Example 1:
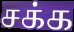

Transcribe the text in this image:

சக்க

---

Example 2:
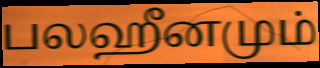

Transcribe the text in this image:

பலஹீனமும்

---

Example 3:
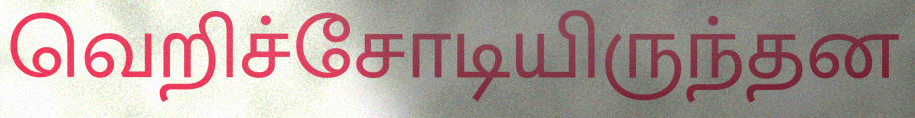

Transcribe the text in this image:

வெறிச்சோடியிருந்தன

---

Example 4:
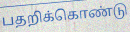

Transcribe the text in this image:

பதறிக்கொண்டு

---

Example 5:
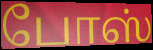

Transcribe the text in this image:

போஸ்